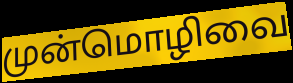
முன்மொழிவை